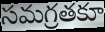
సమగ్రతకూ